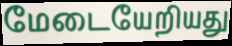
மேடையேறியது